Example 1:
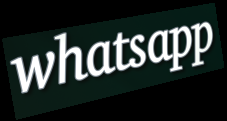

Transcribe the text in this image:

whatsapp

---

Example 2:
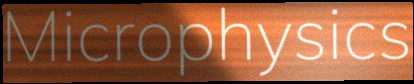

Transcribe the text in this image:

Microphysics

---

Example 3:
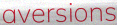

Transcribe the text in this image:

aversions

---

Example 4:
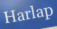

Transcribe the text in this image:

Harlap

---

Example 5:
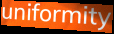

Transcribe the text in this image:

uniformity